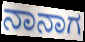
ನಾನಾಗ